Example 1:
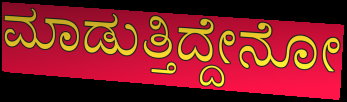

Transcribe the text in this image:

ಮಾಡುತ್ತಿದ್ದೇನೋ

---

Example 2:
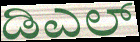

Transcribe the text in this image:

ಡಿಎಲ್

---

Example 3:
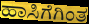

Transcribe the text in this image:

ಹಾಸಿಗೆಗಿಂತ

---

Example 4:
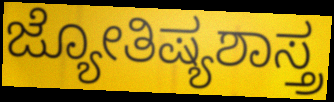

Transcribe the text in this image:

ಜ್ಯೋತಿಷ್ಯಶಾಸ್ತ್ರ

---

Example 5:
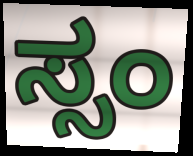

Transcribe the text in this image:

ಸ್ಸಂ